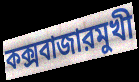
কক্সবাজারমুখী